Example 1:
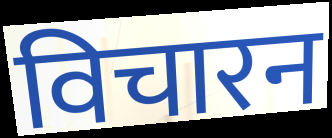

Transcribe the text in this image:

विचारन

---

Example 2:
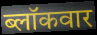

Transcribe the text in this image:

ब्लॉकवार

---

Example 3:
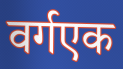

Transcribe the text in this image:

वर्गएक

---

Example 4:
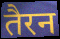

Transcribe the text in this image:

तैरन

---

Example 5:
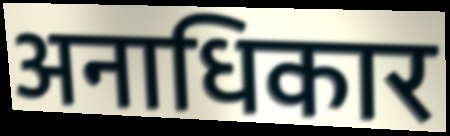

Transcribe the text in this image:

अनाधिकार